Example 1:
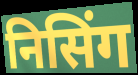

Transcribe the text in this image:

निसिंग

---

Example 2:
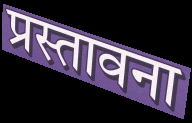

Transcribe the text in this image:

प्रस्‍तावना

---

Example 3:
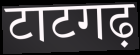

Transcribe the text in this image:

टाटगढ़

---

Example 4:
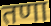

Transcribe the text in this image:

तणा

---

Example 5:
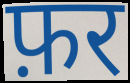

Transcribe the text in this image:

फ़र